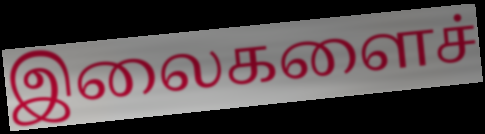
இலைகளைச்